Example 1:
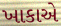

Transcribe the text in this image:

ખાકાએ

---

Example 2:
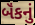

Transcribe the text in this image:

બૅંકનું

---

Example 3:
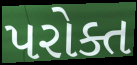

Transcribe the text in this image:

પરોક્ત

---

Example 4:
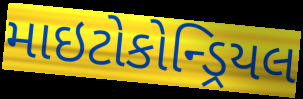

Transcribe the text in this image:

માઇટોકોન્ડ્રિયલ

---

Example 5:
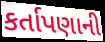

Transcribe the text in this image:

કર્તાપણાની